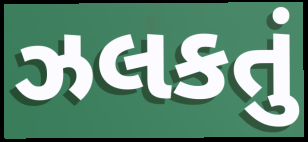
ઝલકતું